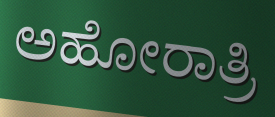
ಅಹೋರಾತ್ರಿ